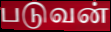
படுவன்